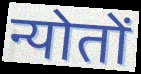
न्योतों